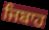
ਜਿਬਾਹ